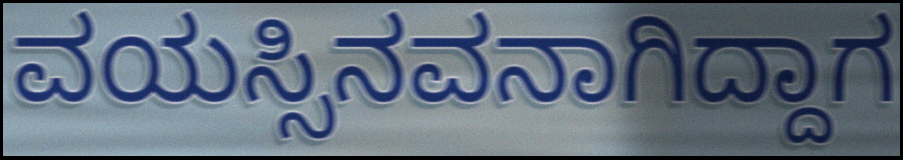
ವಯಸ್ಸಿನವನಾಗಿದ್ದಾಗ